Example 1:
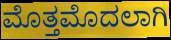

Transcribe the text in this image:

ಮೊತ್ತಮೊದಲಾಗಿ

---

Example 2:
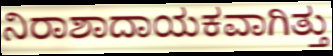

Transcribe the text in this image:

ನಿರಾಶಾದಾಯಕವಾಗಿತ್ತು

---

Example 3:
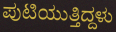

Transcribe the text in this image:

ಪುಟಿಯುತ್ತಿದ್ದಳು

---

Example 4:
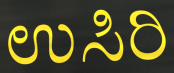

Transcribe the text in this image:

ಉಸಿರಿ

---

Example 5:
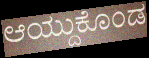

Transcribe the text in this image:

ಆಯ್ದುಕೊಂಡ